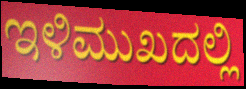
ಇಳಿಮುಖದಲ್ಲಿ